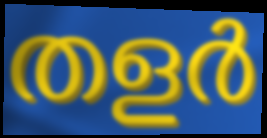
തളർ